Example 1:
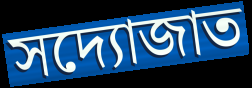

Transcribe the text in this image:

সদ্যোজাত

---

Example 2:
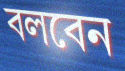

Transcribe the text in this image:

বলবেন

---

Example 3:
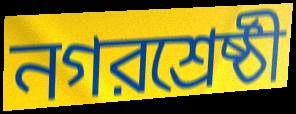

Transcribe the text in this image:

নগরশ্রেষ্ঠী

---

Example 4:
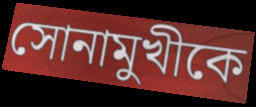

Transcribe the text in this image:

সোনামুখীকে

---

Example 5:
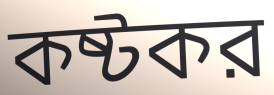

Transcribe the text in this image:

কষ্টকর